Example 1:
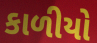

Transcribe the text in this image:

કાળીયો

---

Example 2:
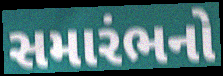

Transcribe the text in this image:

સમારંભનો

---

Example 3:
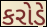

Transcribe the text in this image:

કરોડે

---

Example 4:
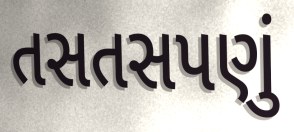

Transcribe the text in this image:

તસતસપણું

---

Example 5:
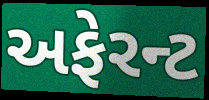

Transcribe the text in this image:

અફેરન્ટ